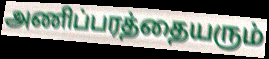
அணிப்பரத்தையரும்